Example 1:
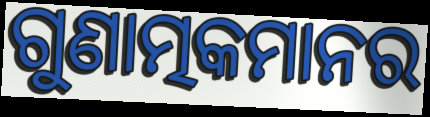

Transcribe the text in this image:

ଗୁଣାତ୍ମକମାନର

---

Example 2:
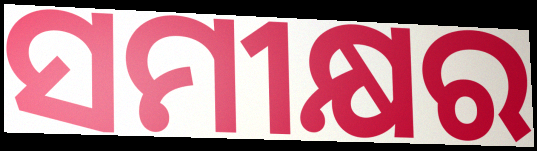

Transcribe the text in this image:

ସମୀକ୍ଷର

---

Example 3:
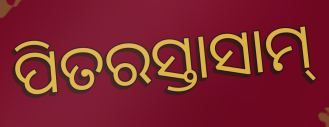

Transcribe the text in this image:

ପିତରସ୍ତାସାମ୍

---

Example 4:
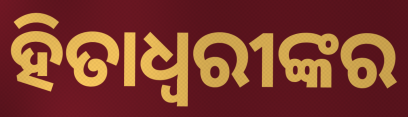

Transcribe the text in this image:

ହିତାଧ୍ଵରୀଙ୍କର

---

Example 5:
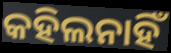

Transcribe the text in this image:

କହିଲନାହିଁ